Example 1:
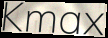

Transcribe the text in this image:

Kmax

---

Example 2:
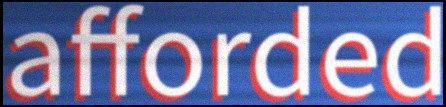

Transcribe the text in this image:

afforded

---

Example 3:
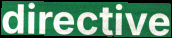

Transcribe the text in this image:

directive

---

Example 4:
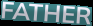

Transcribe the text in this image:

FATHER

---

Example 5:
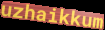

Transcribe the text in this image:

uzhaikkum